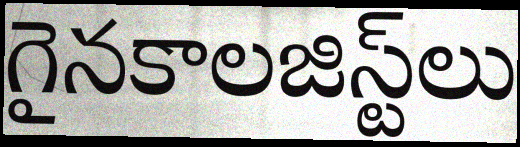
గైనకాలజిస్ట్‌లు